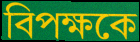
বিপক্ষকে